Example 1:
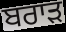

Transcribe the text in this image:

ਬਰਾਡ਼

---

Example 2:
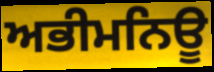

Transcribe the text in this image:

ਅਭੀਮਨਿਊ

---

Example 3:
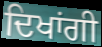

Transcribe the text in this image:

ਦਿਖਾਂਗੀ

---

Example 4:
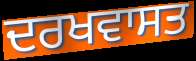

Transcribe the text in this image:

ਦਰਖਵਾਸਤ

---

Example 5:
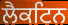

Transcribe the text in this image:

ਲੈਕਟਿਨ